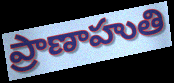
ప్రాణాహుతి